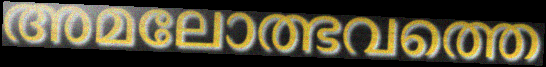
അമലോത്ഭവത്തെ